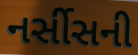
નર્સીસની